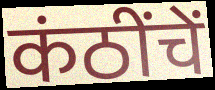
कंठींचें